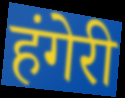
हंगेरी